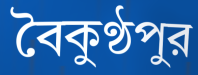
বৈকুণ্ঠপুর